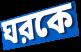
ঘরকে